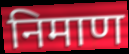
निमाण